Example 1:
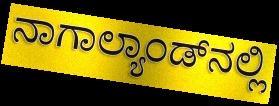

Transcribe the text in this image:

ನಾಗಾಲ್ಯಾಂಡ್‌ನಲ್ಲಿ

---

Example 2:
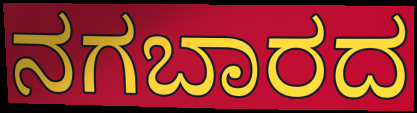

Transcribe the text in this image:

ನಗಬಾರದ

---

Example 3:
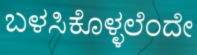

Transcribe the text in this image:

ಬಳಸಿಕೊಳ್ಳಲೆಂದೇ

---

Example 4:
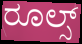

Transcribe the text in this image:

ರೂಲ್ಸ್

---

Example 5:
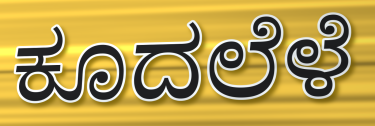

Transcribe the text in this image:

ಕೂದಲೆಳೆ